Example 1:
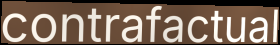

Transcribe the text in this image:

contrafactual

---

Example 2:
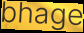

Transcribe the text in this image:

bhage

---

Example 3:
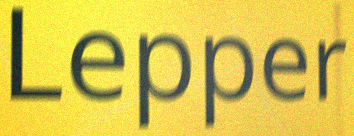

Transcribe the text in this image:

Lepper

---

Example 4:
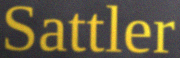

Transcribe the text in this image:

Sattler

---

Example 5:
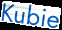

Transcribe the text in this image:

Kubie